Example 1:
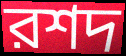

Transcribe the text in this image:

রশদ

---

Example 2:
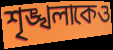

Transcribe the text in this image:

শৃঙ্খলাকেও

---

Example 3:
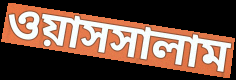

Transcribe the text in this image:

ওয়াসসালাম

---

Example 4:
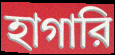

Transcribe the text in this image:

হাগারি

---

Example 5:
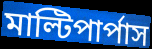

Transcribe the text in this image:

মাল্টিপার্পাস